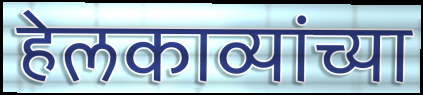
हेलकाव्यांच्या